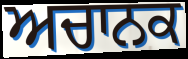
ਅਚਾਨਕ